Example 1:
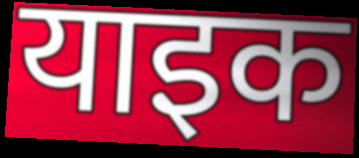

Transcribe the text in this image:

याइक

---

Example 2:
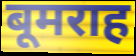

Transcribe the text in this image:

बूमराह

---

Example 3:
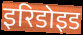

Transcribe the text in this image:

इरिडोइड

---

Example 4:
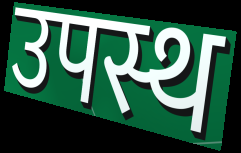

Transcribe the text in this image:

उपस्थ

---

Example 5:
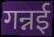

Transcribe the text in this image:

गन्नई